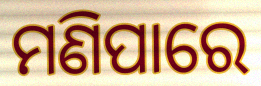
ମଣିପାରେ